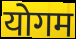
योगम